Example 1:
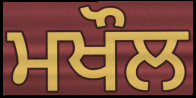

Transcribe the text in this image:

ਮਖੌਲ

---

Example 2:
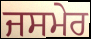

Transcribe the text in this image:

ਜਸਮੇਰ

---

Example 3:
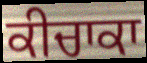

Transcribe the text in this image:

ਕੀਚਾਕਾ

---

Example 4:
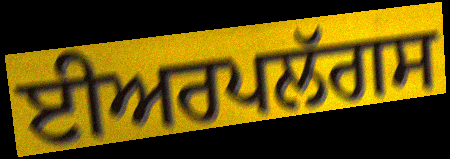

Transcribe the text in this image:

ਈਅਰਪਲੱਗਸ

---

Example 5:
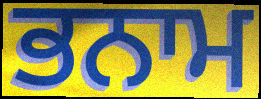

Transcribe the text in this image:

ਭਨਾਮ